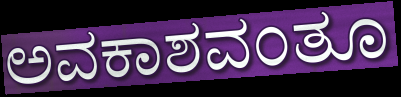
ಅವಕಾಶವಂತೂ